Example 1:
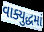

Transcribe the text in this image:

વાક્યુદ્ધમાં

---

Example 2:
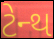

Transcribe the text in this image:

ટેન્થ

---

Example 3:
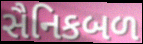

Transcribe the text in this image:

સૈનિકબળ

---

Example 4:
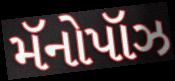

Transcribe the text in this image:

મૅનોપૉઝ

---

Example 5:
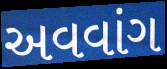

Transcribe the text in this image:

અવવાંગ